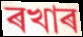
ৰখাৰ